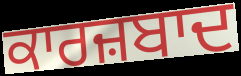
ਕਾਰਜ਼ਬਾਦ